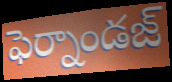
ఫెర్నాండజ్